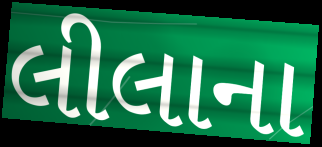
લીલાના